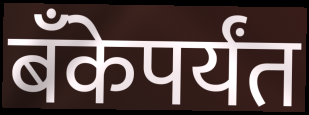
बॅंकेपर्यंत